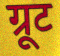
ग्रूट